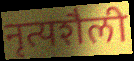
नृत्यशैली